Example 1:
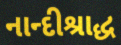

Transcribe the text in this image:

નાન્દીશ્રાદ્ધ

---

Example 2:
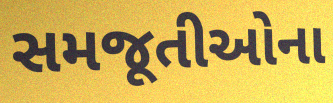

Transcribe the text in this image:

સમજૂતીઓના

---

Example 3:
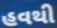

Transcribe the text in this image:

હવથી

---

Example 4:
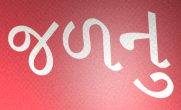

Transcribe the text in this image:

જળનુ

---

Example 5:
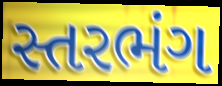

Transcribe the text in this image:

સ્તરભંગ